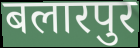
बलारपुर